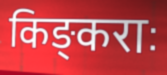
किङ्कराः